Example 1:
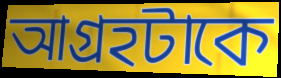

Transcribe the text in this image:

আগ্রহটাকে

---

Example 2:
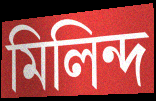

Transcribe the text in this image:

মিলিন্দ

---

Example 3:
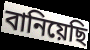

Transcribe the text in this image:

বানিয়েছি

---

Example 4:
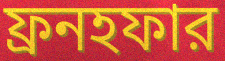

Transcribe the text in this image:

ফ্রনহফার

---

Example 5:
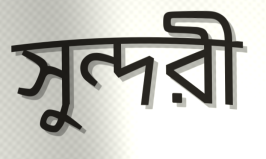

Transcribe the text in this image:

সুন্দরী